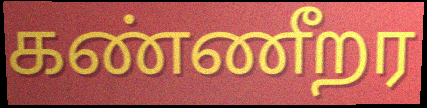
கண்ணீறர